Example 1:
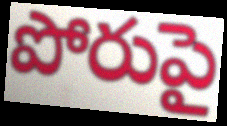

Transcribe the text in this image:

పోరుపై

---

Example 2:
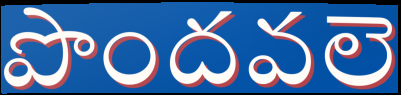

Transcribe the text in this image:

పొందవలె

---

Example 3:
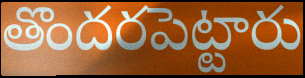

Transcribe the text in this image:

తొందరపెట్టారు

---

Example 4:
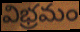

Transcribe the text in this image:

విభ్రమం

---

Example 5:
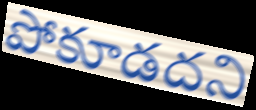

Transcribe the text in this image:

పోకూడదని